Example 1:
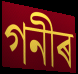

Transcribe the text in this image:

গনীৰ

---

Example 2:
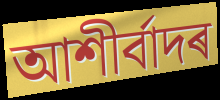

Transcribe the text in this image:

আশীৰ্বাদৰ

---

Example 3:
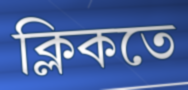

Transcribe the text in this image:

ক্লিকতে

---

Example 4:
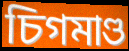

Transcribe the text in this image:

চিগমাণ্ড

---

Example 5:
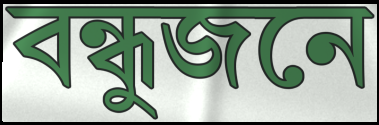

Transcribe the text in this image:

বন্ধুজনে